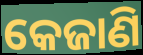
କେଜାଣି